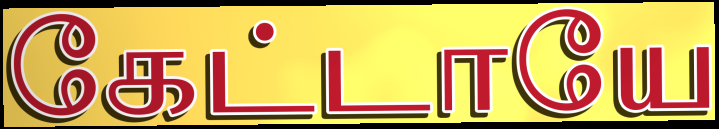
கேட்டாயே